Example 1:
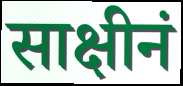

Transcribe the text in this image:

साक्षीनं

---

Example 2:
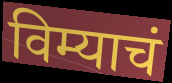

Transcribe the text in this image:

विम्याचं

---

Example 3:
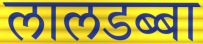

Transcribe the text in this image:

लालडब्बा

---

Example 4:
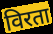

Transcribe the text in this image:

विरता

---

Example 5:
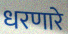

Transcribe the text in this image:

धरणारे